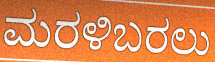
ಮರಳಿಬರಲು